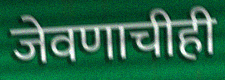
जेवणाचीही